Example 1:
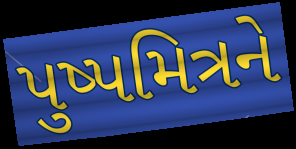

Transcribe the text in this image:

પુષ્પમિત્રને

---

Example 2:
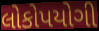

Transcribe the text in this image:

લોકોપયોગી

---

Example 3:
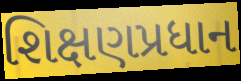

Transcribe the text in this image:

શિક્ષણપ્રધાન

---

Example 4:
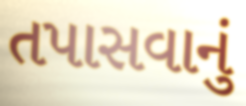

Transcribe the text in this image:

તપાસવાનું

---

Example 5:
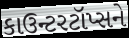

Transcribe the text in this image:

કાઉન્ટરટૉપ્સને